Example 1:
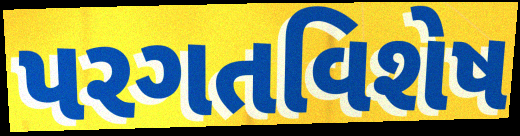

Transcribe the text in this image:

પરગતવિશેષ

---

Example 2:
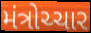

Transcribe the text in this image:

મંત્રોચ્ચાર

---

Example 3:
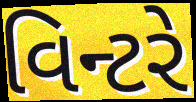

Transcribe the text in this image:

વિન્ટરે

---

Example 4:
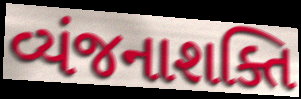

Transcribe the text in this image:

વ્યંજનાશક્તિ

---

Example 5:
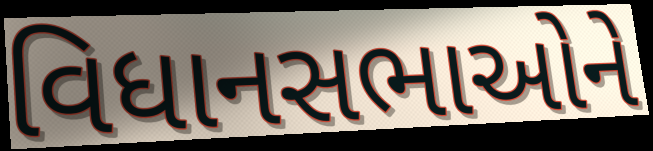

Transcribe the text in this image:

વિધાનસભાઓને